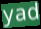
yad